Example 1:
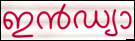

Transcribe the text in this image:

ഇൻഡ്യാ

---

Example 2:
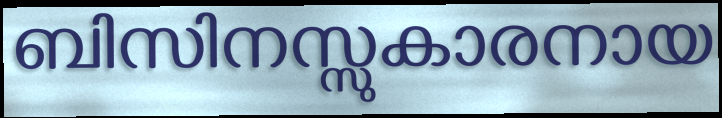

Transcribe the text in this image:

ബിസിനസ്സുകാരനായ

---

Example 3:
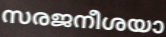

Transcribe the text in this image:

സരജനീശയാ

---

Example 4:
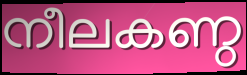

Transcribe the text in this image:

നീലകണ്ഠ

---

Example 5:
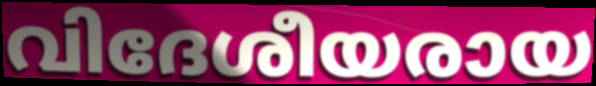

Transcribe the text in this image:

വിദേശീയരായ